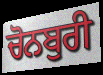
ਚੋਨਬੁਰੀ